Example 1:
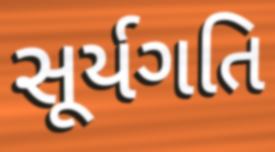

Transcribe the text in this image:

સૂર્યગતિ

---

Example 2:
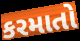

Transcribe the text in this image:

કરમાતો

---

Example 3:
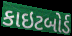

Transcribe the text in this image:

કાઇટબોર્ડ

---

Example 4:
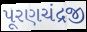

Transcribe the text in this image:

પૂરણચંદ્રજી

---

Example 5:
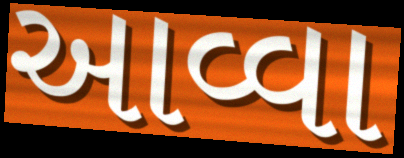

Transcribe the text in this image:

આવ્વા